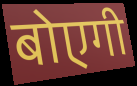
बोएगी